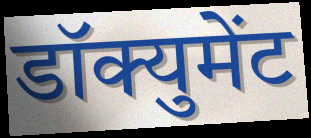
डॉक्युमेंट